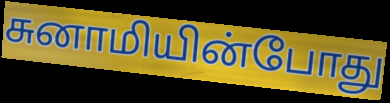
சுனாமியின்போது